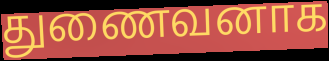
துணைவனாக